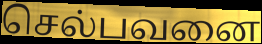
செல்பவனை